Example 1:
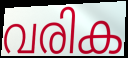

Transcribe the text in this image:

വരിക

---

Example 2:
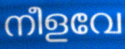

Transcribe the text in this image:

നീളവേ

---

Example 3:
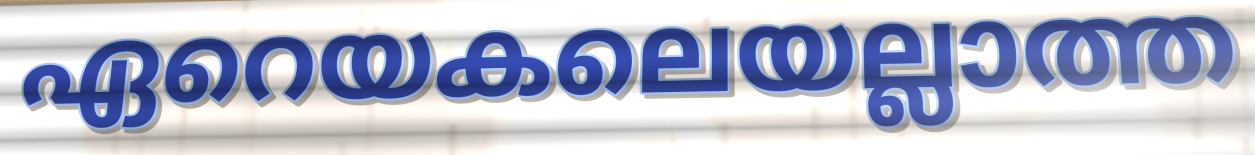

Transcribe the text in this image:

ഏറെയകലെയല്ലാത്ത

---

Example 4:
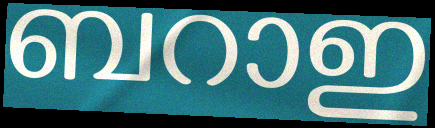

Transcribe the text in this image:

ബറാഇ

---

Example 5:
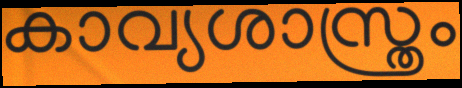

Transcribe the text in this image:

കാവ്യശാസ്ത്രം